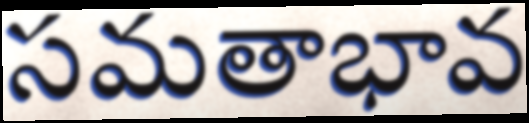
సమతాభావ